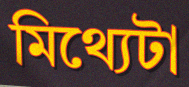
মিথ্যেটা